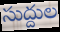
సుద్దుల